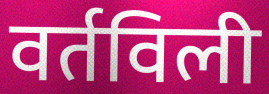
वर्तविली